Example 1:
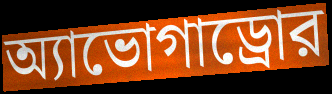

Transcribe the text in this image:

অ্যাভোগাড্রোর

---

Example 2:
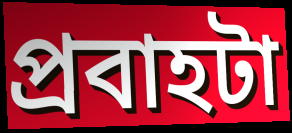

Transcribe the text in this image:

প্রবাহটা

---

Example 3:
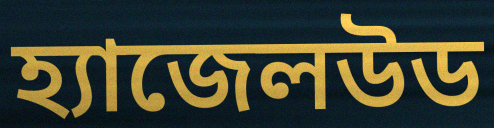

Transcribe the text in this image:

হ্যাজেলউড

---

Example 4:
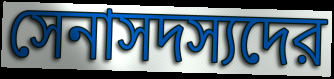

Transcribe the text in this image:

সেনাসদস্যদের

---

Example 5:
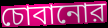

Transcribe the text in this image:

চোবানোর